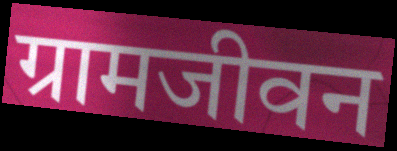
ग्रामजीवन